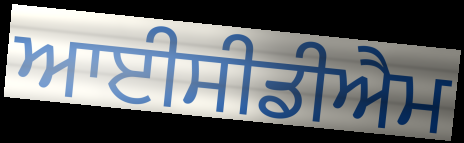
ਆਈਸੀਡੀਐਮ